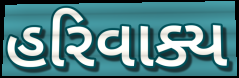
હરિવાક્ય